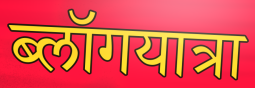
ब्लॉगयात्रा